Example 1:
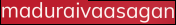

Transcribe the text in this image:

maduraivaasagan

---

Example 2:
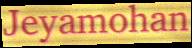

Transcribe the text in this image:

Jeyamohan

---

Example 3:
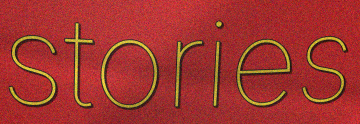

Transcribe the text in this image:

stories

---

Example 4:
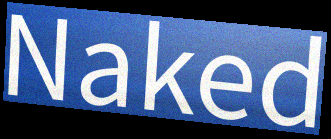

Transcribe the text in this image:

Naked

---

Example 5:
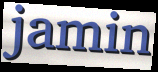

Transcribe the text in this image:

jamin